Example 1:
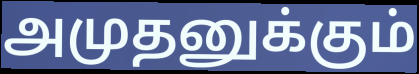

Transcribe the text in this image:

அமுதனுக்கும்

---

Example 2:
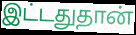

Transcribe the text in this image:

இட்டதுதான்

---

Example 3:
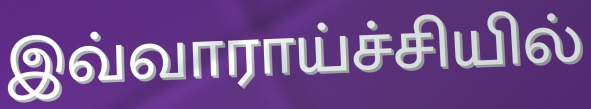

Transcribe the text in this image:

இவ்வாராய்ச்சியில்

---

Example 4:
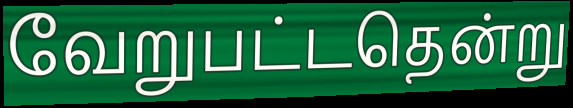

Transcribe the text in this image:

வேறுபட்டதென்று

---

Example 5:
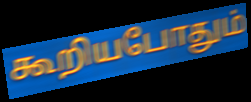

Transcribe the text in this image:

கூறியபோதும்